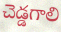
చెడ్డగాలి